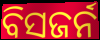
ବିସଜର୍ନ